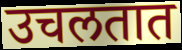
उचलतात